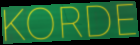
KORDE